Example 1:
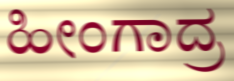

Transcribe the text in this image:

ಹೀಂಗಾದ್ರ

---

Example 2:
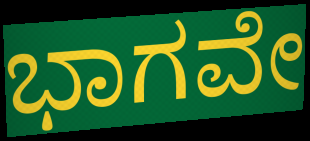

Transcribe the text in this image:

ಭಾಗವೇ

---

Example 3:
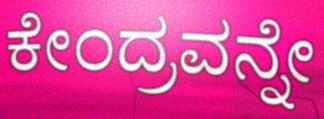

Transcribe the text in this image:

ಕೇಂದ್ರವನ್ನೇ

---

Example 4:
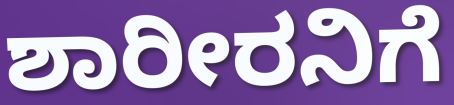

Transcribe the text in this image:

ಶಾರೀರನಿಗೆ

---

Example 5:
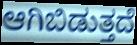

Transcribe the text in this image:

ಆಗಿಬಿಡುತ್ತದೆ